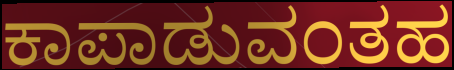
ಕಾಪಾಡುವಂತಹ